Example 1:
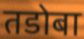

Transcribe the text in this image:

तडोबा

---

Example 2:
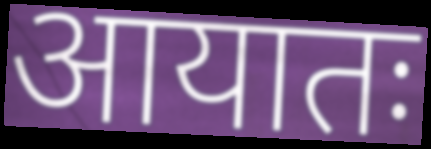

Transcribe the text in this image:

आयातः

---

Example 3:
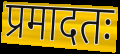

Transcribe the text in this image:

प्रमादतः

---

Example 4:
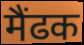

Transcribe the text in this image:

मैंढक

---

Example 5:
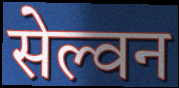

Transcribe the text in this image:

सेल्वन